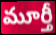
మూర్తీ